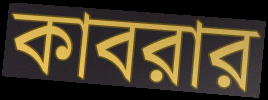
কাবরার